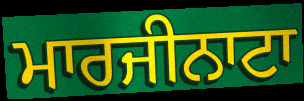
ਮਾਰਜੀਨਾਟਾ